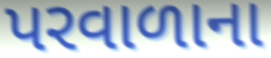
પરવાળાના